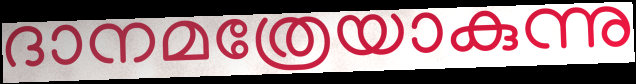
ദാനമത്രേയാകുന്നു